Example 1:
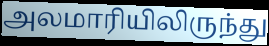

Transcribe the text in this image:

அலமாரியிலிருந்து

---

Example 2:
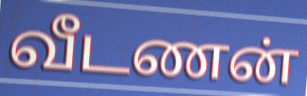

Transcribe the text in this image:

வீடணன்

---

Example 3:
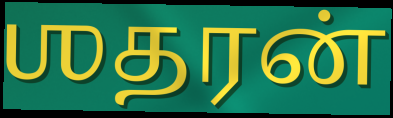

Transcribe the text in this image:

ஶதரன்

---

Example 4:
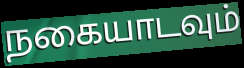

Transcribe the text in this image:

நகையாடவும்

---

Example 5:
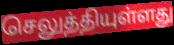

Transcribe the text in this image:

செலுத்தியுள்ளது